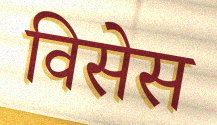
विसेस